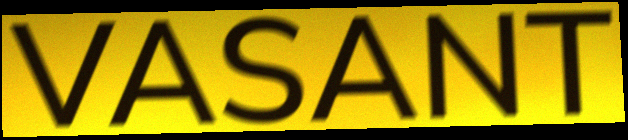
VASANT